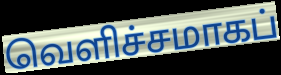
வெளிச்சமாகப்